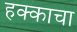
हक्काचा